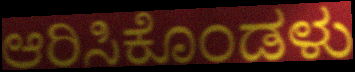
ಆರಿಸಿಕೊಂಡಳು